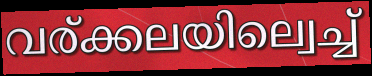
വര്ക്കലയില്വെച്ച്